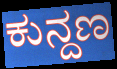
ಕುನ್ದಣ